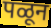
पळून